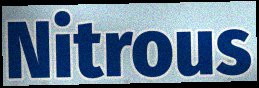
Nitrous